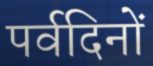
पर्वदिनों